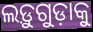
ଲଡ଼ୁଗୁଡ଼ାକୁ